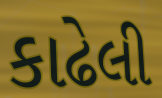
કાઢેલી